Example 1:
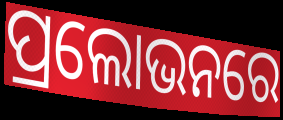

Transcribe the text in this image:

ପ୍ରଲୋଭନରେ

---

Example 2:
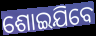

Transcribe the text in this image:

ଶୋଇଯିବେ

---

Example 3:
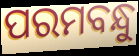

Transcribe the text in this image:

ପରମବନ୍ଧୁ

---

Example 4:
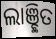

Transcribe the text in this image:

ଲାଞ୍ଛିତ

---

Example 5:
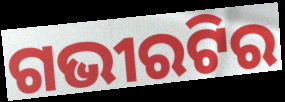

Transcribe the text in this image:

ଗଭୀରଟିର